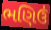
ભણિઉં